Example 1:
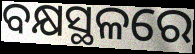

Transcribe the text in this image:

ବକ୍ଷସ୍ଥଳରେ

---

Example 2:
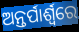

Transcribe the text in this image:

ଅନ୍ତର୍ପାର୍ଶ୍ୱରେ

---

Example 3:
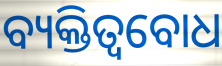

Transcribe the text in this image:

ବ୍ୟକ୍ତିତ୍ୱବୋଧ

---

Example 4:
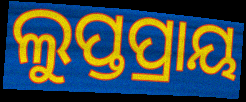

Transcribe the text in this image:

ଲୁପ୍ତପ୍ରାୟ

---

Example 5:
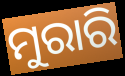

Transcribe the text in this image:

ମୁରାରି